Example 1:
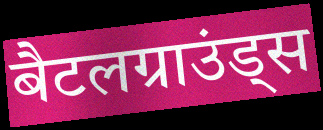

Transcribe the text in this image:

बैटलग्राउंड्स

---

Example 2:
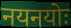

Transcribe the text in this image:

नयनयोः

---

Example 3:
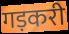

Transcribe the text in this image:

गड़करी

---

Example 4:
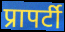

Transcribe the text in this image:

प्रापर्टी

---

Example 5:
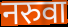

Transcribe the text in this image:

नरुवा